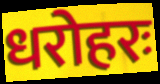
धरोहरः